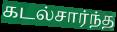
கடல்சார்ந்த